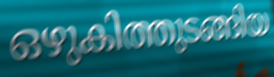
ഒഴുകിത്തുടങ്ങിയ